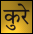
कुरे